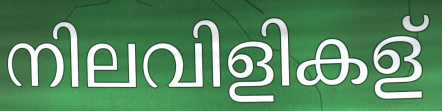
നിലവിളികള്